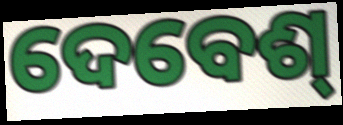
ଦେବେଶ୍